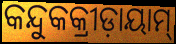
କନ୍ଦୁକକ୍ରୀଡ଼ାୟାମ୍